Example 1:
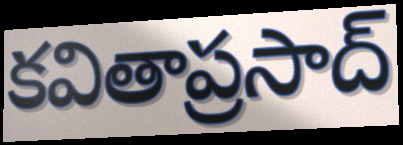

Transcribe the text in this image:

కవితాప్రసాద్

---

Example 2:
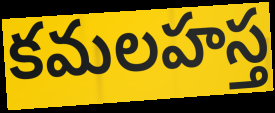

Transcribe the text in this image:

కమలహస్త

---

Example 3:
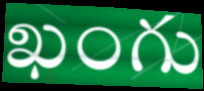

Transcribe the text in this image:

ఖంగు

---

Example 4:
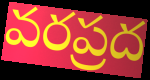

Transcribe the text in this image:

వరప్రద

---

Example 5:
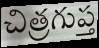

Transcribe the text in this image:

చిత్రగుప్త